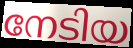
നേടിയ